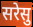
सरेसु